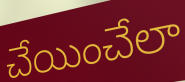
చేయించేలా